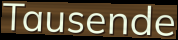
Tausende